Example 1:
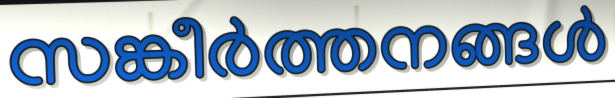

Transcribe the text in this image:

സങ്കീർത്തനങ്ങൾ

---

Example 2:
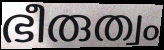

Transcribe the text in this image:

ഭീരുത്വം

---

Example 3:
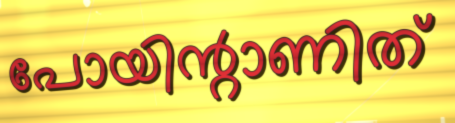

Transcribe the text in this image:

പോയിന്റാണിത്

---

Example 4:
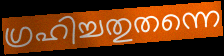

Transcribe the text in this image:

ഗ്രഹിച്ചതുതന്നെ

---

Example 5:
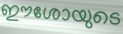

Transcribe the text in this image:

ഈശോയുടെ